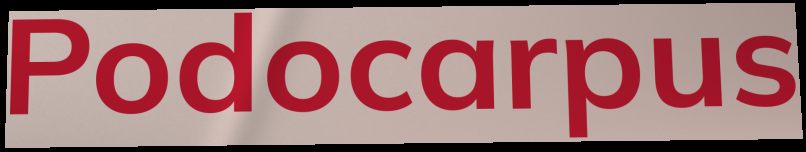
Podocarpus